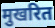
मुखरित